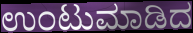
ಉಂಟುಮಾಡಿದ